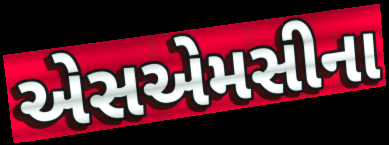
એસએમસીના